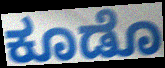
ಕೂಡೊ